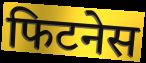
फिटनेस